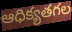
ఆధిక్యతగల